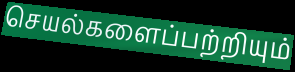
செயல்களைப்பற்றியும்